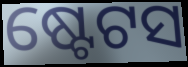
ଷ୍ଟେଟସ